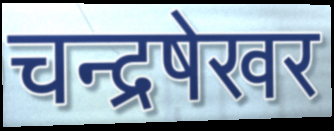
चन्द्रषेखर